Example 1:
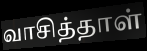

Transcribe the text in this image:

வாசித்தாள்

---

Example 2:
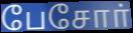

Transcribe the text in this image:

பேசோர்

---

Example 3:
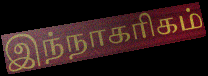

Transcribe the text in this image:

இந்நாகரிகம்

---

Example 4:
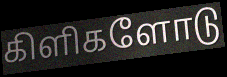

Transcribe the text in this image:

கிளிகளோடு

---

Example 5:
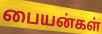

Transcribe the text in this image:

பையன்கள்